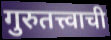
गुरुतत्त्वाची